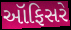
ઑફિસરે